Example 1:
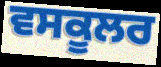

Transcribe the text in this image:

ਵਸਕੂਲਰ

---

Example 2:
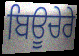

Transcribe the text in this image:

ਬਿਊਚੇਰੇ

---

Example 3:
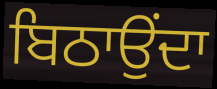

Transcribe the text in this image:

ਬਿਠਾਉਂਦਾ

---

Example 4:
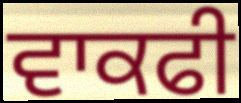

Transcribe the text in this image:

ਵਾਕਫੀ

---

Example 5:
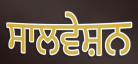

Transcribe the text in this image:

ਸਾਲਵੇਸ਼ਨ